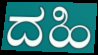
ದಹಿ